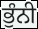
ਭੁੰਨੀ